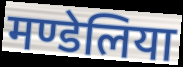
मण्डेलिया